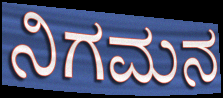
ನಿಗಮನ